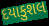
દયાકુશલ